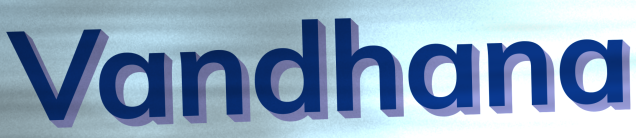
Vandhana